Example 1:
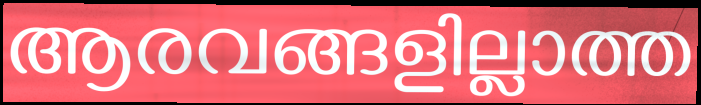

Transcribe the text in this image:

ആരവങ്ങളില്ലാത്ത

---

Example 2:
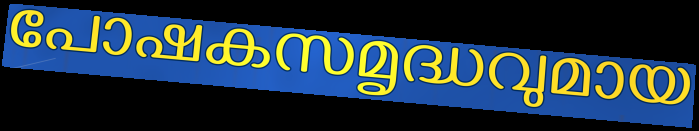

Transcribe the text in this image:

പോഷകസമൃദ്ധവുമായ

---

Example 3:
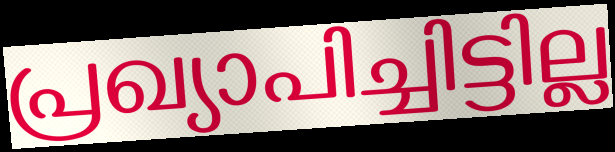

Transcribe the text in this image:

പ്രഖ്യാപിച്ചിട്ടില്ല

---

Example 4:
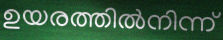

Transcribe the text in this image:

ഉയരത്തിൽനിന്ന്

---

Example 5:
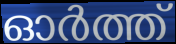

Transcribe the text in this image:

ഓർത്ത്